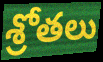
శ్రోతలు